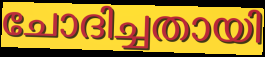
ചോദിച്ചതായി